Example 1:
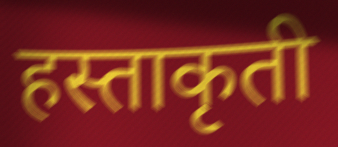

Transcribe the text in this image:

हस्ताकृती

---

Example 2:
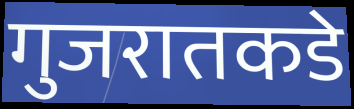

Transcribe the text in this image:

गुजरातकडे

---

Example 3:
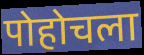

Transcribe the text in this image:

पोहोचला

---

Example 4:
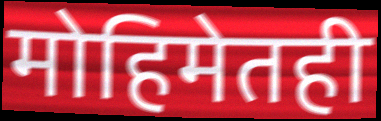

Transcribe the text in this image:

मोहिमेतही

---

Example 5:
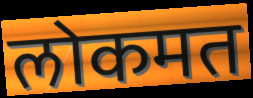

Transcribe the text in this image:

लोकमत